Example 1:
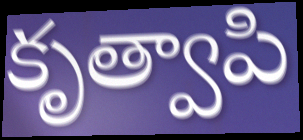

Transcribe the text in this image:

కృత్వాపి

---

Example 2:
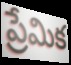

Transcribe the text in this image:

ప్రేమిక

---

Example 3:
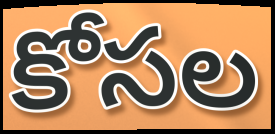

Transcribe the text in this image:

కోసల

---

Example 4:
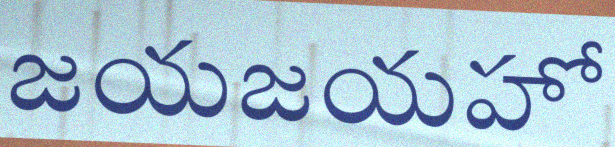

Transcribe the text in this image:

జయజయహో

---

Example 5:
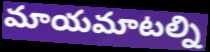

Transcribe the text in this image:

మాయమాటల్ని